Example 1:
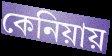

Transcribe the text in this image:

কেনিয়ায়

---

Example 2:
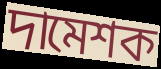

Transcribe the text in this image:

দামেশক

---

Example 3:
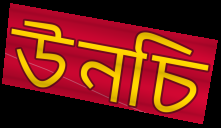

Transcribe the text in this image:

উনচি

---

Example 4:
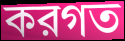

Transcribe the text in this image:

করগত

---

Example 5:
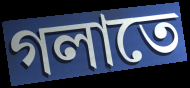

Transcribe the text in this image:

গলাতে